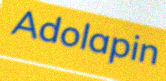
Adolapin